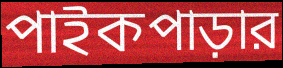
পাইকপাড়ার